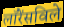
लॉरेंसविले